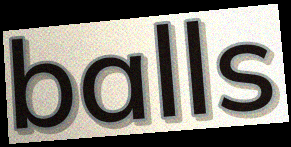
balls